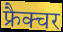
फ्रैक्चर